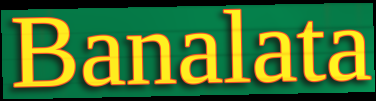
Banalata